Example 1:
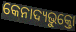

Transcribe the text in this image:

କେନାଦ୍ୟଭୁକ୍ତୋ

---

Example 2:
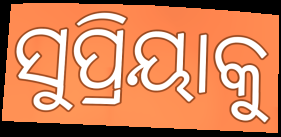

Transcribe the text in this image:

ସୁପ୍ରିୟାକୁ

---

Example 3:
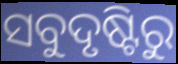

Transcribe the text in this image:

ସବୁଦୃଷ୍ଟିରୁ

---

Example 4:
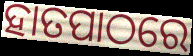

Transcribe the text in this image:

ହାତପାଠରେ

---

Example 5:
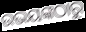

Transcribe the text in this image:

ଉଭୟଙ୍କଠାରୁ